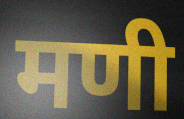
मणी